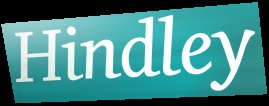
Hindley